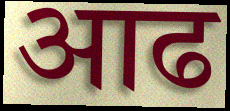
आढ